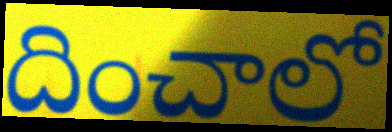
దించాలో